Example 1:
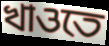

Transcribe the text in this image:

খাওতে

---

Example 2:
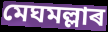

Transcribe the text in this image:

মেঘমল্লাৰ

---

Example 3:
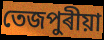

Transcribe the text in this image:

তেজপুৰীয়া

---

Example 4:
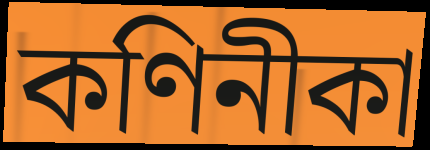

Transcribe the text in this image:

কণিনীকা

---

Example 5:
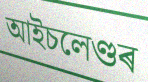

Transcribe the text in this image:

আইচলেণ্ডৰ